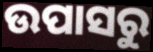
ଉପାସରୁ